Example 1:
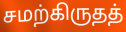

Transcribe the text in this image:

சமற்கிருதத்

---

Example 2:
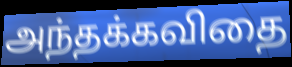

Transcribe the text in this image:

அந்தக்கவிதை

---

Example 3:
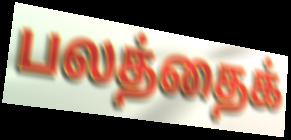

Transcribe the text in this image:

பலத்தைக்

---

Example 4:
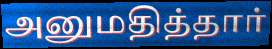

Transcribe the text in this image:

அனுமதித்தார்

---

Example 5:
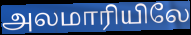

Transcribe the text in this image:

அலமாரியிலே